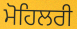
ਮੋਹਿਲਰੀ